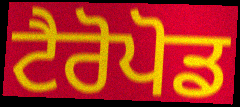
ਟੈਰੋਪੋਡ